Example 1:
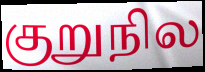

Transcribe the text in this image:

குறுநில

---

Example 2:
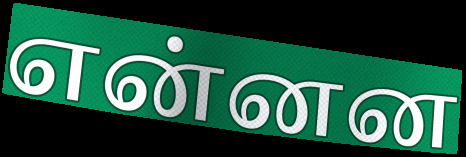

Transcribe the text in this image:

என்னன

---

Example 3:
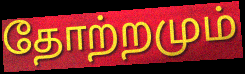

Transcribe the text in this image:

தோற்றமும்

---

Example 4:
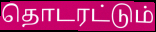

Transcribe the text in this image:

தொடரட்டும்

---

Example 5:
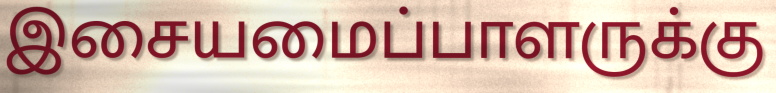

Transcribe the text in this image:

இசையமைப்பாளருக்கு